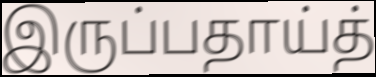
இருப்பதாய்த்